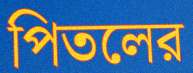
পিতলের